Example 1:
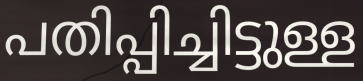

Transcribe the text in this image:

പതിപ്പിച്ചിട്ടുള്ള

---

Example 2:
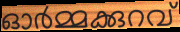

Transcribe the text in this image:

ഓർമ്മക്കുറവ്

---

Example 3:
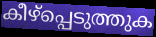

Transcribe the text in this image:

കീഴ്പ്പെടുത്തുക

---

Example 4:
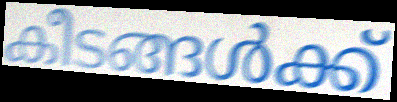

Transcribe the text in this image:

കീടങ്ങൾക്ക്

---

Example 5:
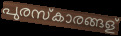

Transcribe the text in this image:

പുരസ്കാരങ്ങള്